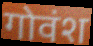
गोवंश